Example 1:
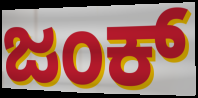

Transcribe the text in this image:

ಜಂಕ್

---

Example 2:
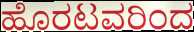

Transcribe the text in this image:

ಹೊರಟವರಿಂದ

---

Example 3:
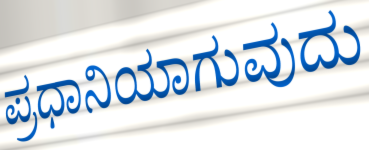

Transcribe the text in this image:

ಪ್ರಧಾನಿಯಾಗುವುದು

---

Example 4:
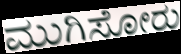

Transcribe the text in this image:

ಮುಗಿಸೋರು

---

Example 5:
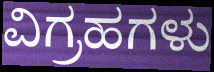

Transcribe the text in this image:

ವಿಗ್ರಹಗಳು